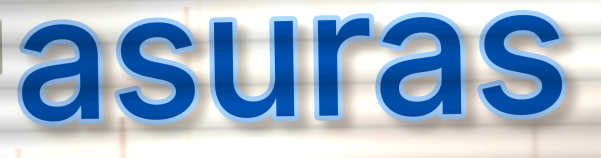
asuras